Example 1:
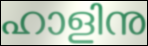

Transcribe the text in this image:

ഹാളിനു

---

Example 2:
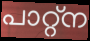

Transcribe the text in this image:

പാറ്റ്ന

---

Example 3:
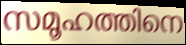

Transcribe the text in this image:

സമൂഹത്തിനെ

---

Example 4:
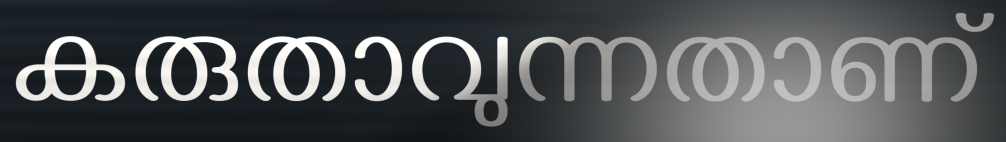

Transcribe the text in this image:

കരുതാവുന്നതാണ്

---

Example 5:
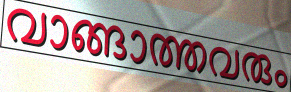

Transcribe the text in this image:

വാങ്ങാത്തവരും